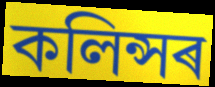
কলিন্সৰ